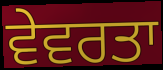
ਵੇਵਰਤਾ